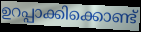
ഉറപ്പാക്കിക്കൊണ്ട്